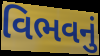
વિભવનું